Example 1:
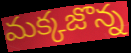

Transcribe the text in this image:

మక్కజొన్న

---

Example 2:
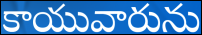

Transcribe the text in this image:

కాయువారును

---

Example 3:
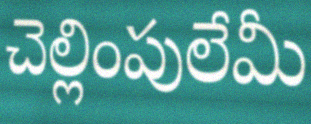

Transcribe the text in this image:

చెల్లింపులేమీ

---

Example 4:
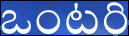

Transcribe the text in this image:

ఒంటరి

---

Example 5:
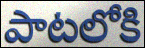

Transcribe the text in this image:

పాటలోకి